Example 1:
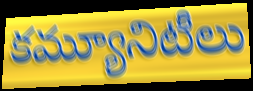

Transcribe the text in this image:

కమ్యూనిటీలు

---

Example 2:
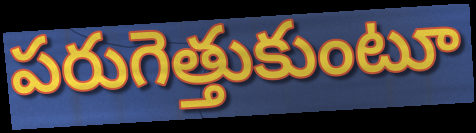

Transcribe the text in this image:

పరుగెత్తుకుంటూ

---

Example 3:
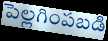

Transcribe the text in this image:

పెల్లగింపబడి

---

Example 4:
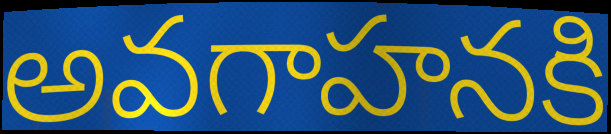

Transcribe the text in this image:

అవగాహనకి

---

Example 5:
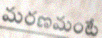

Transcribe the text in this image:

మరణమంటే